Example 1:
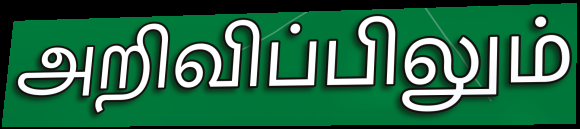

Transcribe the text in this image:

அறிவிப்பிலும்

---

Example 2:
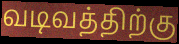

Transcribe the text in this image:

வடிவத்திற்கு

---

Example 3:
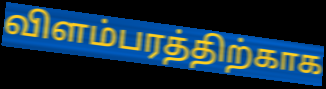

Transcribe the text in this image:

விளம்பரத்திற்காக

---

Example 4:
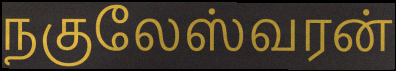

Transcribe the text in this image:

நகுலேஸ்வரன்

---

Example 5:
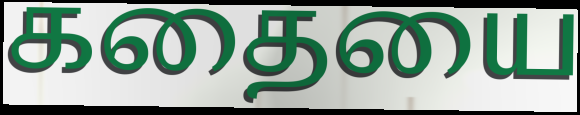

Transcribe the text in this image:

கதையை